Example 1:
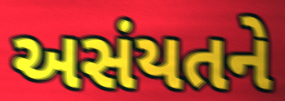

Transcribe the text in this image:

અસંયતને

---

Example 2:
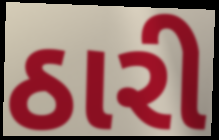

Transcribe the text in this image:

ઠારી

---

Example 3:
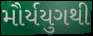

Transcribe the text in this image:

મૌર્યયુગથી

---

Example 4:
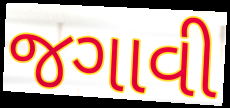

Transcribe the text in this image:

જગાવી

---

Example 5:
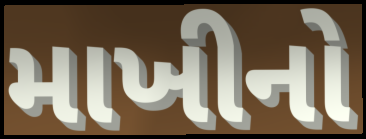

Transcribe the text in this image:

માખીનો